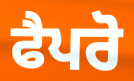
ਫੈਪਰੋ